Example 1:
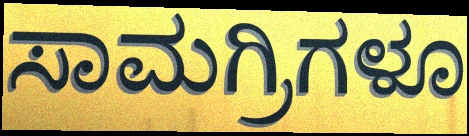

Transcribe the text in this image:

ಸಾಮಗ್ರಿಗಳೂ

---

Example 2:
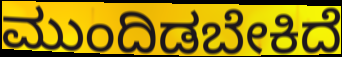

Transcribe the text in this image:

ಮುಂದಿಡಬೇಕಿದೆ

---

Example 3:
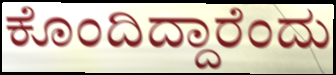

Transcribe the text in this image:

ಕೊಂದಿದ್ದಾರೆಂದು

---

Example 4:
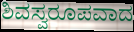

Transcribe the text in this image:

ಶಿವಸ್ವರೂಪವಾದ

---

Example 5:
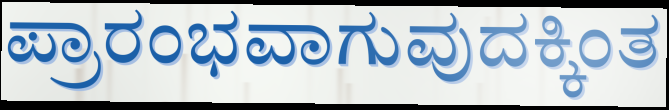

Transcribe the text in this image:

ಪ್ರಾರಂಭವಾಗುವುದಕ್ಕಿಂತ